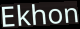
Ekhon